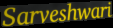
Sarveshwari